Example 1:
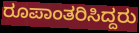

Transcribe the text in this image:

ರೂಪಾಂತರಿಸಿದ್ದರು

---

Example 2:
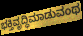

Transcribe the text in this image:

ಭಕ್ತಿವೃದ್ಧಿಮಾಡುವಂಥ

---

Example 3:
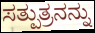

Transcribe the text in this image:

ಸತ್ಪುತ್ರನನ್ನು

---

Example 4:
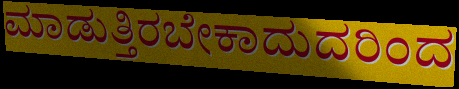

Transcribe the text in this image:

ಮಾಡುತ್ತಿರಬೇಕಾದುದರಿಂದ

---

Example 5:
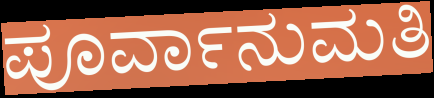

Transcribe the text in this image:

ಪೂರ್ವಾನುಮತಿ